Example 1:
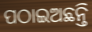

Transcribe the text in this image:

ପଠାଇଅଛନ୍ତି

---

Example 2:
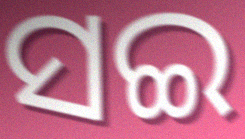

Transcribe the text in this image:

ସଇ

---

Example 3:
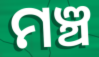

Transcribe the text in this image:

ମଞ୍ଚ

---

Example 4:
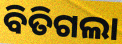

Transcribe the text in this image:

ବିତିଗଲା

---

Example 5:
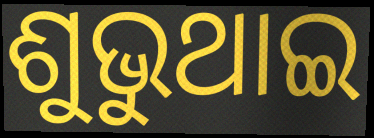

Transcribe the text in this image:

ଶୁଭୁଥାଇ